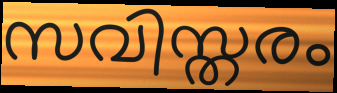
സവിസ്തരം